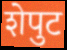
शेपुट